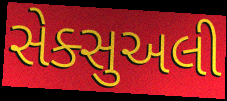
સેક્સુઅલી